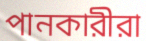
পানকারীরা